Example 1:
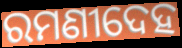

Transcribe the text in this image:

ରମଣୀଦେହ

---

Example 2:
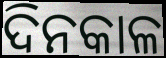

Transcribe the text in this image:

ଦିନକାଳ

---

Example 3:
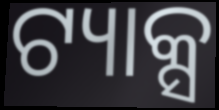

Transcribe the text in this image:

ଟ୍ୟାକ୍ସ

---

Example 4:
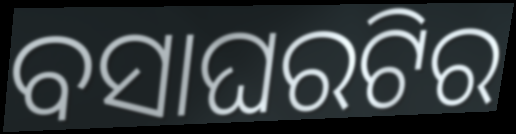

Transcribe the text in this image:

ବସାଘରଟିର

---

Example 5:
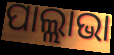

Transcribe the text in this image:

ପାଲ୍ଲାଭା